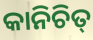
କାନିଚିତ୍